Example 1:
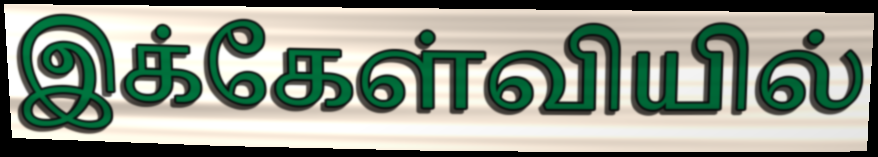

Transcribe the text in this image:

இக்கேள்வியில்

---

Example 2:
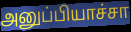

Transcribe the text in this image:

அனுப்பியாச்சா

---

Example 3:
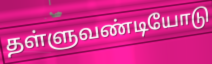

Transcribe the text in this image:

தள்ளுவண்டியோடு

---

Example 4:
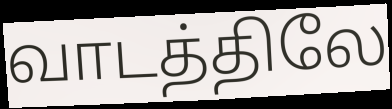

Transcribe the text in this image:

வாடத்திலே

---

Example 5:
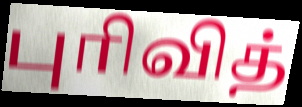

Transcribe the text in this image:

புரிவித்